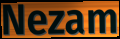
Nezam